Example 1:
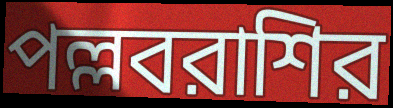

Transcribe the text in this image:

পল্লবরাশির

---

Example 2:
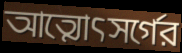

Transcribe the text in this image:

আত্মোৎসর্গের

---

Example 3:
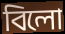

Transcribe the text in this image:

বিলো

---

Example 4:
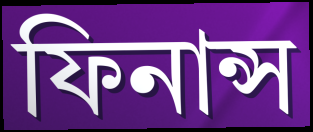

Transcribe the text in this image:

ফিনান্স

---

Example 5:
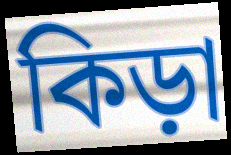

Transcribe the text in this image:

কিড়া